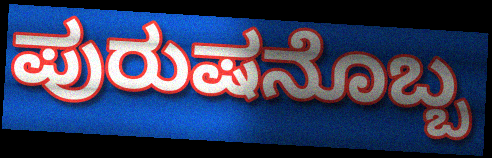
ಪುರುಷನೊಬ್ಬ